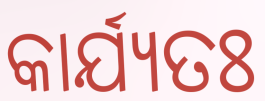
କାର୍ଯ୍ୟତଃ